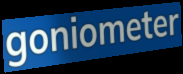
goniometer